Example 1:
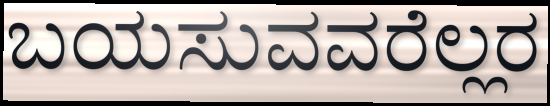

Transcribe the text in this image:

ಬಯಸುವವರೆಲ್ಲರ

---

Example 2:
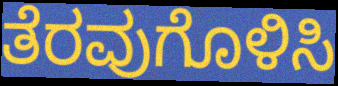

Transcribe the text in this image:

ತೆರವುಗೊಳಿಸಿ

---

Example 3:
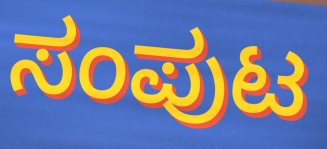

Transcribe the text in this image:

ಸಂಪುಟ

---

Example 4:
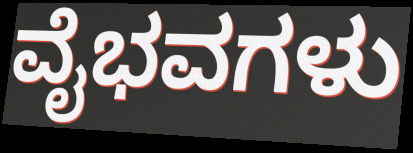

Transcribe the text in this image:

ವೈಭವಗಳು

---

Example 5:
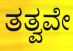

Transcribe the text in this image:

ತತ್ವವೇ